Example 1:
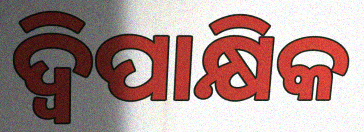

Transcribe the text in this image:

ଦ୍ୱିପାକ୍ଷିକ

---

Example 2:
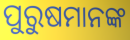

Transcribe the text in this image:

ପୁରୁଷମାନଙ୍କ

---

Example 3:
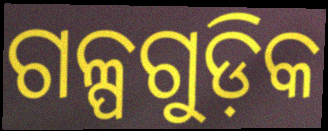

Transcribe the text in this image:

ଗଳ୍ପଗୁଡ଼ିକ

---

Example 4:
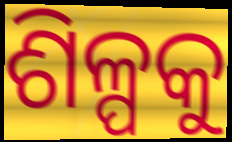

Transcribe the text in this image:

ଶିଳ୍ପକୁ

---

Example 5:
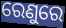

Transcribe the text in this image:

ରେଣୁରେ